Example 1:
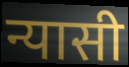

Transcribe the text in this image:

न्यासी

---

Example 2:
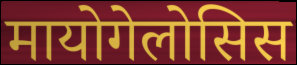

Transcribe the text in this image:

मायोगेलोसिस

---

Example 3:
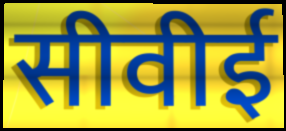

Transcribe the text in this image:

सीवीई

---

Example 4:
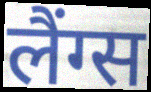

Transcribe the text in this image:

लैंग्स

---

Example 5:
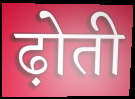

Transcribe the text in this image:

ढ़ोती